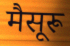
मैसूरू